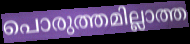
പൊരുത്തമില്ലാത്ത